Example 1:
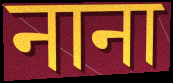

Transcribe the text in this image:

नाना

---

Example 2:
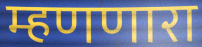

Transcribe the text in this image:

म्हणणारा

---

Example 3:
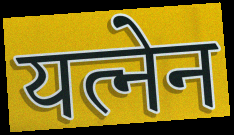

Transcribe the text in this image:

यत्नेन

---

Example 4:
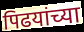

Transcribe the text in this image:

पिढयांच्या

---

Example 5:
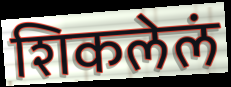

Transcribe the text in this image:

शिकलेलं